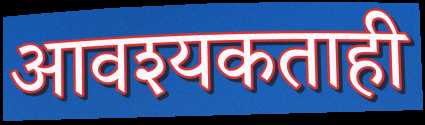
आवश्यकताही